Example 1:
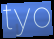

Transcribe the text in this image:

tyo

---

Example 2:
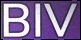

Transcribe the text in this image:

BIV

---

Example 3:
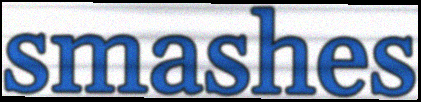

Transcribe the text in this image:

smashes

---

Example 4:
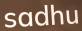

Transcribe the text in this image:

sadhu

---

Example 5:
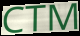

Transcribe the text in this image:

CTM